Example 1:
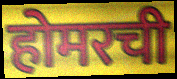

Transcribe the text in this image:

होमरची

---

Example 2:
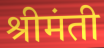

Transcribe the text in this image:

श्रीमंती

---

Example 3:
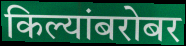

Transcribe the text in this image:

किल्यांबरोबर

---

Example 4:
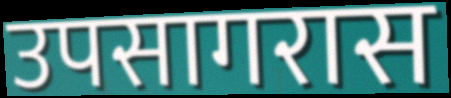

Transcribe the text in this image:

उपसागरास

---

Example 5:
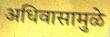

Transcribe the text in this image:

अधिवासामुळे